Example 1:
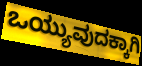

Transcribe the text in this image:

ಒಯ್ಯುವುದಕ್ಕಾಗಿ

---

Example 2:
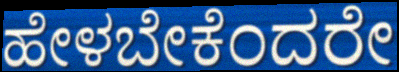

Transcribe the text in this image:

ಹೇಳಬೇಕೆಂದರೇ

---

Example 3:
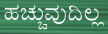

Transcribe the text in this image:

ಹಚ್ಚುವುದಿಲ್ಲ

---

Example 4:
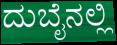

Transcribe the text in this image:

ದುಬೈನಲ್ಲಿ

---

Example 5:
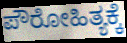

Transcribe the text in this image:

ಪೌರೋಹಿತ್ಯಕ್ಕೆ